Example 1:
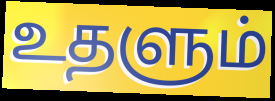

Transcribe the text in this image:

உதளும்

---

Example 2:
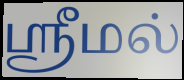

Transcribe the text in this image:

ஶ்ரீமல்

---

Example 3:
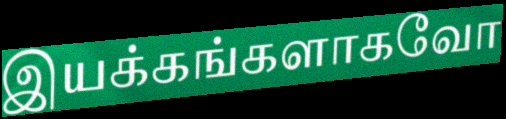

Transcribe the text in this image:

இயக்கங்களாகவோ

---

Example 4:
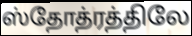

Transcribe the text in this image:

ஸ்தோத்ரத்திலே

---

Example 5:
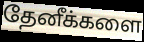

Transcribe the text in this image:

தேனீக்களை